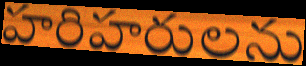
హరిహరులను